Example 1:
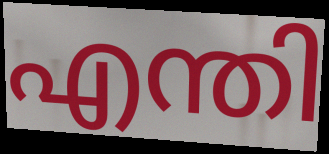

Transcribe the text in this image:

എന്തി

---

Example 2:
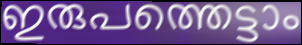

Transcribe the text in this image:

ഇരുപത്തെട്ടാം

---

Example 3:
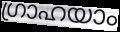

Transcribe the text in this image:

ഗ്രാഹയാം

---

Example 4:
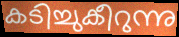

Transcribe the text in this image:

കടിച്ചുകീറുന്നു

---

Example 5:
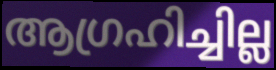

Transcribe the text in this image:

ആഗ്രഹിച്ചില്ല